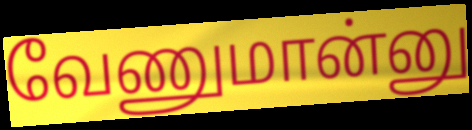
வேணுமான்னு